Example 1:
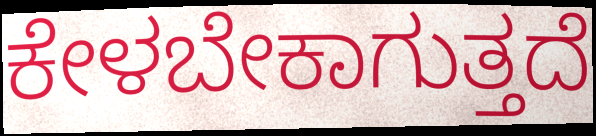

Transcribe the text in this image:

ಕೇಳಬೇಕಾಗುತ್ತದೆ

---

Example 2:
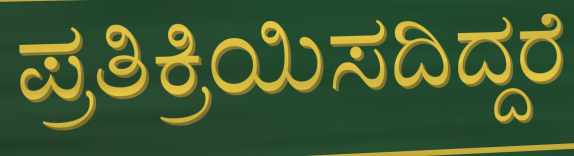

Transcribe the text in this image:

ಪ್ರತಿಕ್ರಿಯಿಸದಿದ್ದರೆ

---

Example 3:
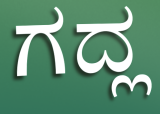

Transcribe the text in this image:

ಗದ್ಲ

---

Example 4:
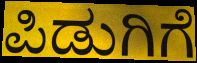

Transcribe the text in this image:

ಪಿಡುಗಿಗೆ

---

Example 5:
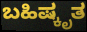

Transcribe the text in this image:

ಬಹಿಷ್ಕೃತ